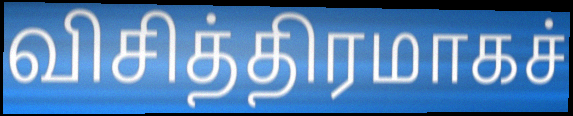
விசித்திரமாகச்